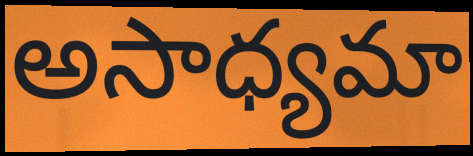
అసాధ్యమా